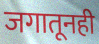
जगातूनही